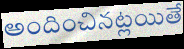
అందించినట్లయితే